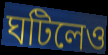
ঘটিলেও